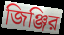
জিঞ্জির